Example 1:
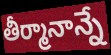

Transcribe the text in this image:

తీర్మానాన్నే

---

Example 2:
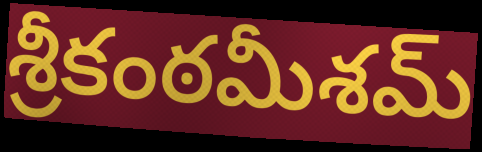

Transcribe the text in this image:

శ్రీకంఠమీశమ్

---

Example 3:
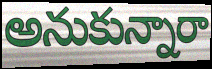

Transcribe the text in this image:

అనుకున్నారా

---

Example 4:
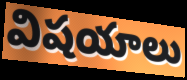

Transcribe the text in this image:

విషయాలు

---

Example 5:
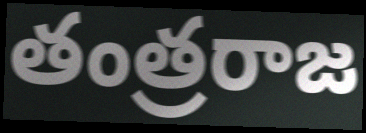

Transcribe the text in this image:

తంత్రరాజ